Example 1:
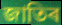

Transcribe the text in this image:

জাতিৰ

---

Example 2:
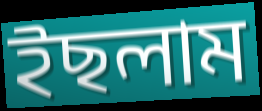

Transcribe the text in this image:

ইছলাম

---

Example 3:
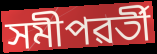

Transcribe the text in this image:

সমীপৱৰ্তী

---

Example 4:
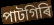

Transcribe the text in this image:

পাটগিৰি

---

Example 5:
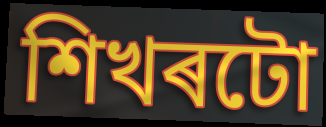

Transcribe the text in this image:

শিখৰটো